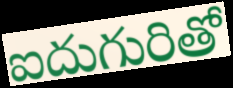
ఐదుగురితో